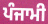
ਪੰਜਾਮੀ